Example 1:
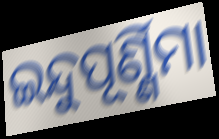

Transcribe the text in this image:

ଇନ୍ଦୁପୂର୍ଣ୍ଣିମା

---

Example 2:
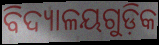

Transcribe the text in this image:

ବିଦ୍ୟାଳୟଗୁଡ଼ିକ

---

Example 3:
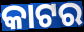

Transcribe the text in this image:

କାଟର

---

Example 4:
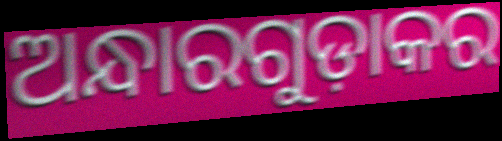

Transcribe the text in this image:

ଅନ୍ଧାରଗୁଡ଼ାକର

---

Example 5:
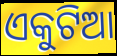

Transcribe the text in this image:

ଏକୁଟିଆ